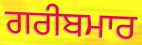
ਗਰੀਬਮਾਰ